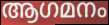
ആഗമനം